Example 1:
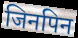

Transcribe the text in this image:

जिनपिन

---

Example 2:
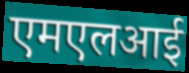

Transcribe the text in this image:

एमएलआई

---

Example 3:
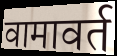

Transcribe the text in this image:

वामावर्त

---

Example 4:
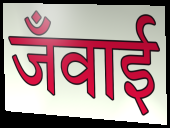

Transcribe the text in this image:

जँवाई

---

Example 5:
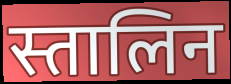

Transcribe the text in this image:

स्तालिन